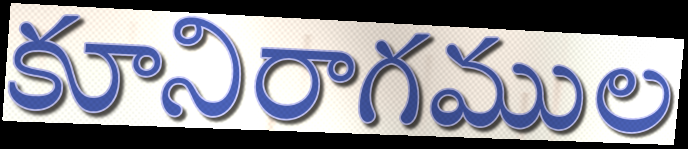
కూనిరాగముల